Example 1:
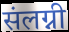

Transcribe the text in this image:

संलग्नी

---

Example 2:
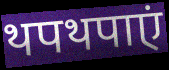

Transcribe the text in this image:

थपथपाएं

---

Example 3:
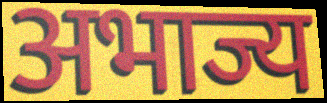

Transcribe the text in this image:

अभाज्य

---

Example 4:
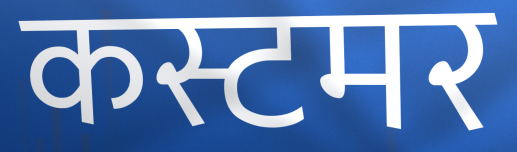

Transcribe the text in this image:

कस्‍टमर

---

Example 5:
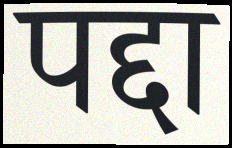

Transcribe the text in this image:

पद्दा